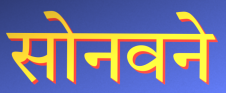
सोनवने